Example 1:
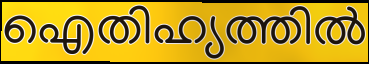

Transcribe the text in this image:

ഐതിഹ്യത്തിൽ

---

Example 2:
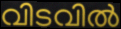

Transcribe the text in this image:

വിടവിൽ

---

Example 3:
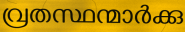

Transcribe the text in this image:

വ്രതസ്ഥന്മാർക്കു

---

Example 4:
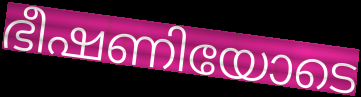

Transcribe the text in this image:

ഭീഷണിയോടെ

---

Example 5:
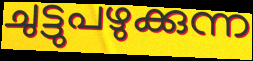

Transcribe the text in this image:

ചുട്ടുപഴുക്കുന്ന